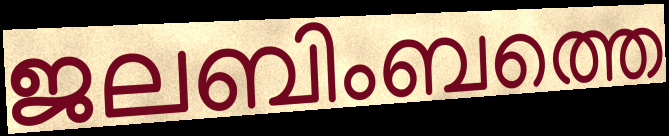
ജലബിംബത്തെ